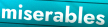
miserables